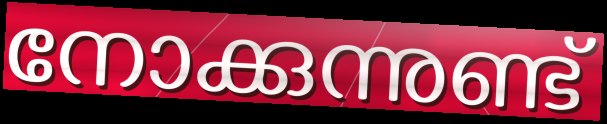
നോക്കുന്നുണ്ട്